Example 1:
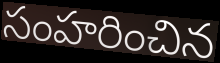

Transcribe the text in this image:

సంహరించిన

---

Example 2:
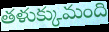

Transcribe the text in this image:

తళుక్కుమంది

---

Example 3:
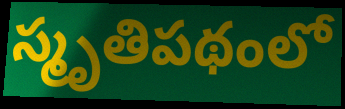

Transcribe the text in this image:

స్మృతిపథంలో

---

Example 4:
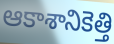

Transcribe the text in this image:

ఆకాశానికెత్తి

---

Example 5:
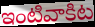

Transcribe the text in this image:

ఇంటివాకిట